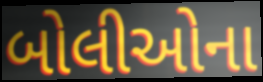
બોલીઓના